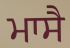
ਮਾਸੈ